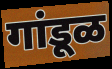
गांडूळ